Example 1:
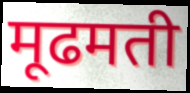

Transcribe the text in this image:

मूढमती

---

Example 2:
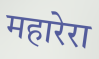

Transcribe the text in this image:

महारेरा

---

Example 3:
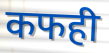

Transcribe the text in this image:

कफही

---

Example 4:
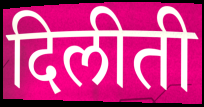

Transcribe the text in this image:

दिलीती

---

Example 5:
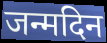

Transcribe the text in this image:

जन्मदिन